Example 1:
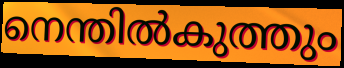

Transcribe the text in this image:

നെന്തിൽകുത്തും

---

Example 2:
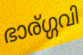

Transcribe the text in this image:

ഭാര്ഗ്ഗവി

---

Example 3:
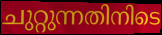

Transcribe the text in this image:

ചുറ്റുന്നതിനിടെ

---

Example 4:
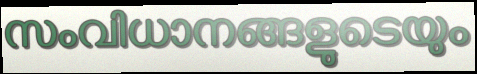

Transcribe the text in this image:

സംവിധാനങ്ങളുടെയും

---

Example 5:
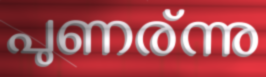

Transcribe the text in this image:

പുണര്ന്നു